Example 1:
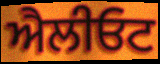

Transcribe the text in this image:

ਐਲੀਓਟ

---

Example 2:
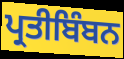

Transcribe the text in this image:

ਪ੍ਰਤੀਬਿੰਬਨ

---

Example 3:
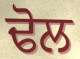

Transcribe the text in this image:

ਢੋਲ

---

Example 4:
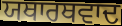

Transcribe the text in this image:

ਯਥਾਰਥਵਾਦ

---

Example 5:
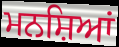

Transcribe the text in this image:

ਮਨਸ਼ਿਆਂ